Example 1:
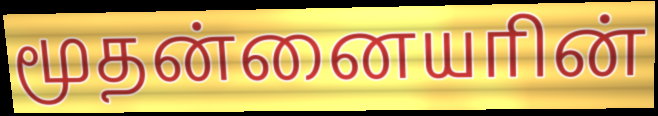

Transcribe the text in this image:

மூதன்னையரின்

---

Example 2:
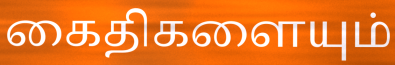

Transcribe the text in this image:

கைதிகளையும்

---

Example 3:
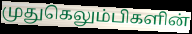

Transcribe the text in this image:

முதுகெலும்பிகளின்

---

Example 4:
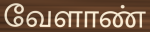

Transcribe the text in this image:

வேளாண்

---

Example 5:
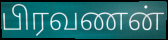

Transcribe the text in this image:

பிரவணன்